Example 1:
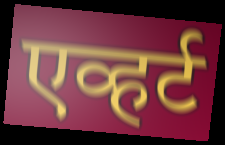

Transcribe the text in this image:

एव्हर्ट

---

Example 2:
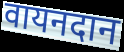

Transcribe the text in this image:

वायनदान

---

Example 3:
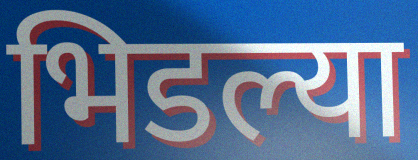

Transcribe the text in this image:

भिडल्या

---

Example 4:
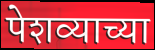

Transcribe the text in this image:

पेशव्याच्या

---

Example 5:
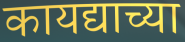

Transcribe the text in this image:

कायद्याच्या